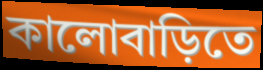
কালোবাড়িতে